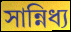
সান্নিধ্য